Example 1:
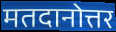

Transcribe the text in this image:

मतदानोत्तर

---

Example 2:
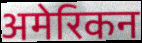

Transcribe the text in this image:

अमेरिकन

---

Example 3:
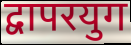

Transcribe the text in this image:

द्वापरयुग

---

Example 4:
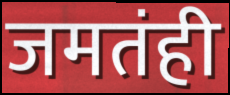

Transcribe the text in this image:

जमतंही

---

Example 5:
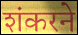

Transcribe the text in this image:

शंकरने